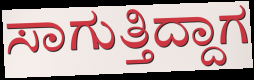
ಸಾಗುತ್ತಿದ್ದಾಗ